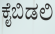
ಕೈಬಿಡಲಿ